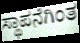
ಸ್ಥಾಪನೆಗಿಂತ